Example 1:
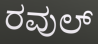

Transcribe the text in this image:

ರವುಲ್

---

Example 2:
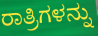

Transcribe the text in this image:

ರಾತ್ರಿಗಳನ್ನು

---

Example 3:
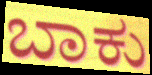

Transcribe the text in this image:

ಬಾಕು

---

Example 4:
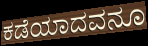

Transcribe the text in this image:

ಕಡೆಯಾದವನೂ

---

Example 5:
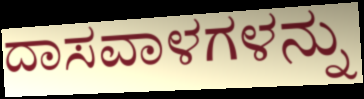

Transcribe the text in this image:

ದಾಸವಾಳಗಳನ್ನು